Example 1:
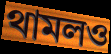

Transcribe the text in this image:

থামলও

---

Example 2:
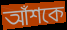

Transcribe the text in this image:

আঁশকে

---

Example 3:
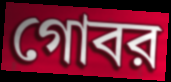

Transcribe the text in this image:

গোবর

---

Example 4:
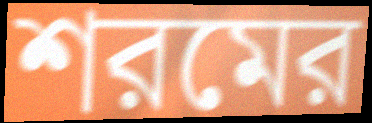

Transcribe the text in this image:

শরমের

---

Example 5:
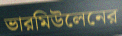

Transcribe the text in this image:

ভারমিউলেনের